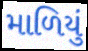
માળિયું